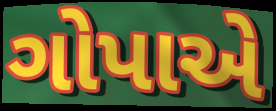
ગોપાએ